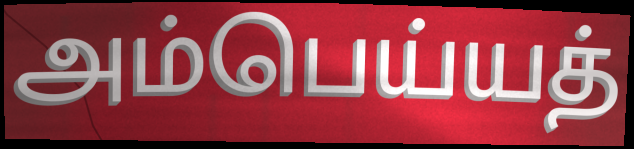
அம்பெய்யத்